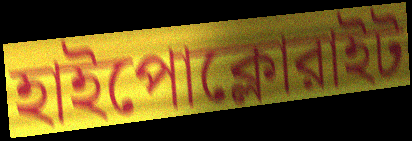
হাইপোক্লোরাইট